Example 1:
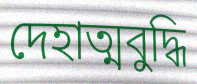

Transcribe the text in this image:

দেহাত্মবুদ্ধি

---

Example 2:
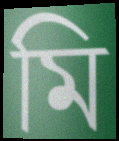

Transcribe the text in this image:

মি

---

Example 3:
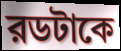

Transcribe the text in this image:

রডটাকে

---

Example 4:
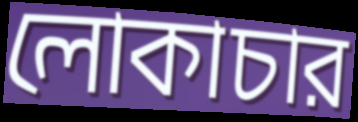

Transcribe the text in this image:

লোকাচার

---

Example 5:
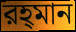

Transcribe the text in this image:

রহ্‌মান